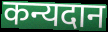
कन्यदान